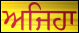
ਅਜਿਹਾ